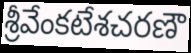
శ్రీవేంకటేశచరణౌ